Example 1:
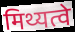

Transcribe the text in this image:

मिथ्यत्वे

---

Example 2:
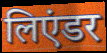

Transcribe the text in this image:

लिएंडर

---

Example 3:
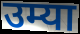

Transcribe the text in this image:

उम्या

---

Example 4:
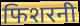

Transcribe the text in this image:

फिशरनी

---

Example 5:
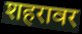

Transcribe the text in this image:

शहरावर